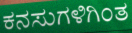
ಕನಸುಗಳಿಗಿಂತ